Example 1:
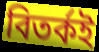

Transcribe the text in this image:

বিতৰ্কই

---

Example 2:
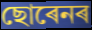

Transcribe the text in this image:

ছোৰেনৰ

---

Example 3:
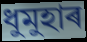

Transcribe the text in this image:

ধুমুহাৰ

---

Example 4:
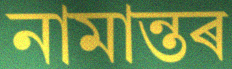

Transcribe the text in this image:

নামান্তৰ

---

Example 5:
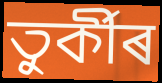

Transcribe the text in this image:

তুৰ্কীৰ